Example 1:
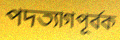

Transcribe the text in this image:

পদত্যাগপূর্বক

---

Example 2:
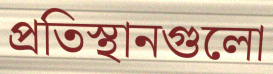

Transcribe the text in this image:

প্রতিস্থানগুলো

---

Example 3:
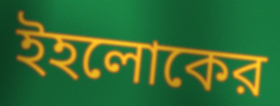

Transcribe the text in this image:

ইহলোকের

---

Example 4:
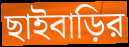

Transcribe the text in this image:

ছাইবাড়ির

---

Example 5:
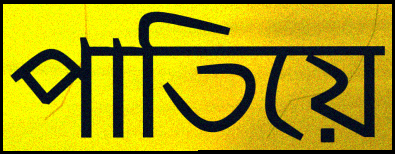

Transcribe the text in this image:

পাতিয়ে